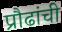
प्रौढांची